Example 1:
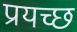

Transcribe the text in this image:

प्रयच्छ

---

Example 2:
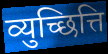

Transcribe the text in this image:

व्युच्छित्ति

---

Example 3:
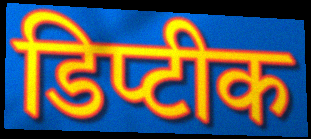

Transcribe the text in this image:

डिप्टीक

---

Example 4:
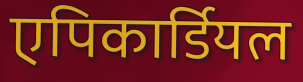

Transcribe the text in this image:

एपिकार्डियल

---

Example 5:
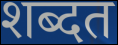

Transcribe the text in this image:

शब्दत